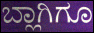
ಬ್ಲಾಗಿಗೂ